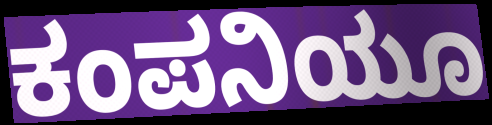
ಕಂಪನಿಯೂ